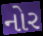
નોર